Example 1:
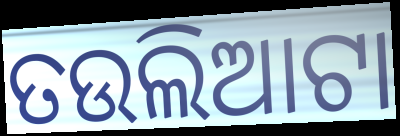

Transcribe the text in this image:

ତଉଲିଆଟା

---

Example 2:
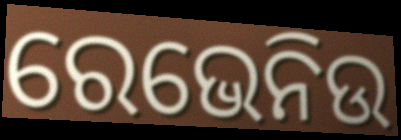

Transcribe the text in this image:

ରେଭେନିଉ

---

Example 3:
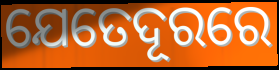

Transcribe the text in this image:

ଯେତେଦୂରରେ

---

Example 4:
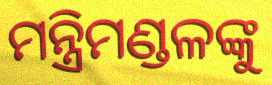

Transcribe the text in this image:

ମନ୍ତ୍ରିମଣ୍ଡଳଙ୍କୁ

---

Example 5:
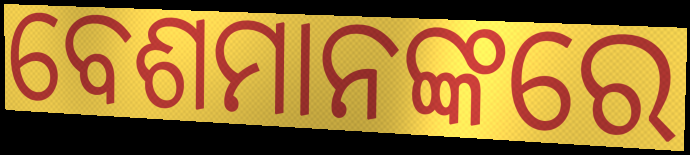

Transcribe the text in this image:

ବେଶମାନଙ୍କରେ